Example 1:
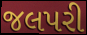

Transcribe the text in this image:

જલપરી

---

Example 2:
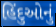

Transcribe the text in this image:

હિંદુઓનું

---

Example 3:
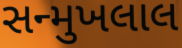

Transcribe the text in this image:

સન્મુખલાલ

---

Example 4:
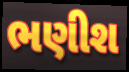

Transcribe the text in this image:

ભણીશ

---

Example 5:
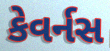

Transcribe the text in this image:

કેવર્નસ